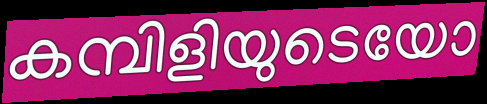
കമ്പിളിയുടെയോ